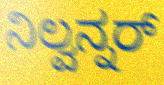
ನಿಲ್ವನ್ನರ್